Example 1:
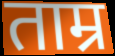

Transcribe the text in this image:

ताम्र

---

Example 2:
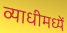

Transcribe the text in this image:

व्याधीमध्यें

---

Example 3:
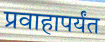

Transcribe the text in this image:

प्रवाहापर्यंत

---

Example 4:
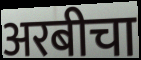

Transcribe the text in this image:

अरबीचा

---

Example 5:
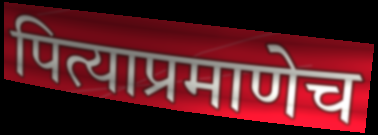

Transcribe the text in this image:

पित्याप्रमाणेच